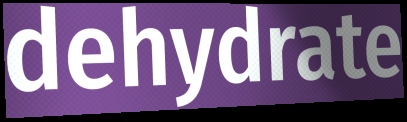
dehydrate